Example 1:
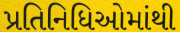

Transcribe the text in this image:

પ્રતિનિધિઓમાંથી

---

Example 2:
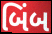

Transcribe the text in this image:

બિંબ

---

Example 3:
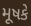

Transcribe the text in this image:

મૂષકે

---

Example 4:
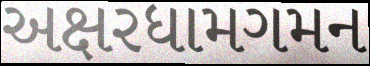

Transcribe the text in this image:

અક્ષરધામગમન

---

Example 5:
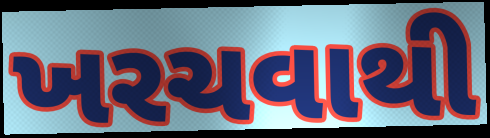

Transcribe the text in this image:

ખરચવાથી